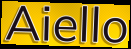
Aiello